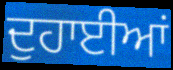
ਦੁਹਾਈਆਂ